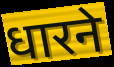
धारने